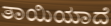
ತಾಯಿಯಾದೆ